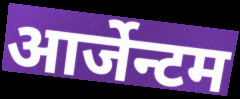
आर्जेन्टम